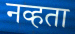
नव्हता